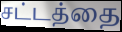
சட்டத்தை